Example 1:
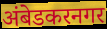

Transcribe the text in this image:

अंबेडकरनगर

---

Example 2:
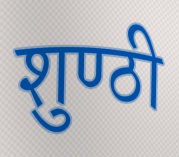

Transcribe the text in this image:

शुण्ठी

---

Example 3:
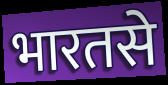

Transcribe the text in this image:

भारतसे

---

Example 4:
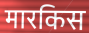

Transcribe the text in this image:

मारकिस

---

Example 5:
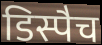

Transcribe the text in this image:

डिस्‍पैच